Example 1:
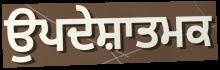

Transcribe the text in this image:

ਉਪਦੇਸ਼ਾਤਮਕ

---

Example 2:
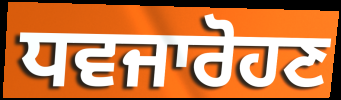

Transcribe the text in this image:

ਧਵਜਾਰੋਹਣ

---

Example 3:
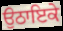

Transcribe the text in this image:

ਉਠਾਇਕੇ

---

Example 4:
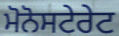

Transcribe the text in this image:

ਮੋਨੋਸਟੇਰੇਟ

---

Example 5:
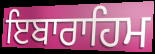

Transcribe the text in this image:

ਇਬਾਰਾਹਿਮ